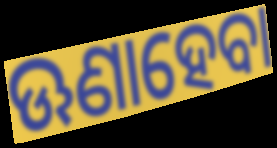
ଊଣାହେବା